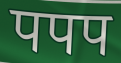
पपप